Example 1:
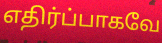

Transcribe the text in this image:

எதிர்ப்பாகவே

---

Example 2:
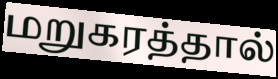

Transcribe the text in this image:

மறுகரத்தால்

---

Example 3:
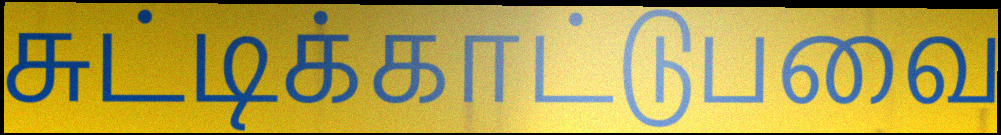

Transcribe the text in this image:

சுட்டிக்காட்டுபவை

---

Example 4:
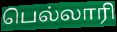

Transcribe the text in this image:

பெல்லாரி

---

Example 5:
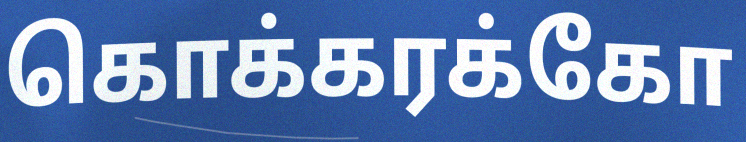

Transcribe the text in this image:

கொக்கரக்கோ